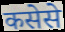
कसेसे